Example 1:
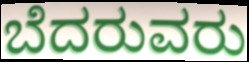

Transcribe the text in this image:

ಬೆದರುವರು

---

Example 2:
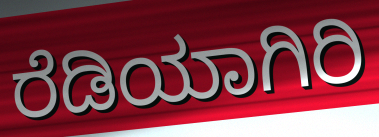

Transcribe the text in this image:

ರೆಡಿಯಾಗಿರಿ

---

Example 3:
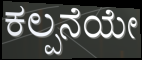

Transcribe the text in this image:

ಕಲ್ಪನೆಯೇ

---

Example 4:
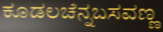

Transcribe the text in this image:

ಕೂಡಲಚೆನ್ನಬಸವಣ್ಣ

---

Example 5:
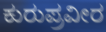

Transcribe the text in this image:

ಕುರುಪ್ರವೀರ